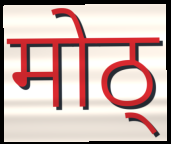
मोठ्